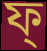
ফ্